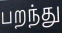
பறந்து